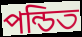
পন্ডিত